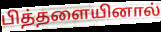
பித்தளையினால்